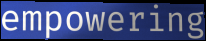
empowering